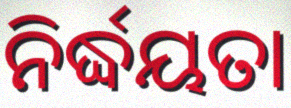
ନିର୍ଦ୍ଧୟତା